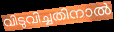
വിടുവിച്ചതിനാൽ